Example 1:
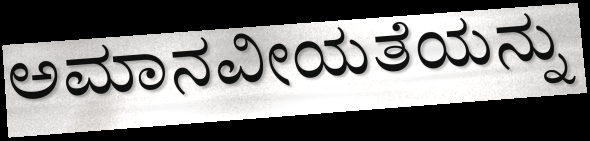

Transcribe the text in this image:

ಅಮಾನವೀಯತೆಯನ್ನು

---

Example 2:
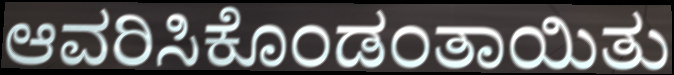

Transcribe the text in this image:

ಆವರಿಸಿಕೊಂಡಂತಾಯಿತು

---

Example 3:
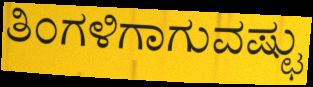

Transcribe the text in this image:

ತಿಂಗಳಿಗಾಗುವಷ್ಟು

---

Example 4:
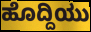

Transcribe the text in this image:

ಹೊದ್ದಿಯು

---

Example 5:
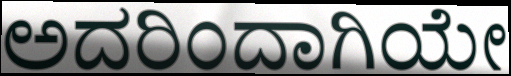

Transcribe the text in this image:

ಅದರಿಂದಾಗಿಯೇ